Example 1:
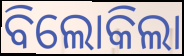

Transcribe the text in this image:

ବିଲୋକିଲା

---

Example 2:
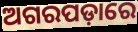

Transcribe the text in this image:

ଅଗରପଡ଼ାରେ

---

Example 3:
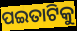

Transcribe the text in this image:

ପଇତାଟିକୁ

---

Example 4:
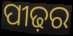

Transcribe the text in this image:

ପୀଢ଼ର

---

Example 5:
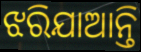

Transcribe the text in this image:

ଝରିଯାଆନ୍ତି